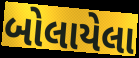
બોલાયેલા